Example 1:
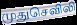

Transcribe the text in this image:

முதுசெவிலி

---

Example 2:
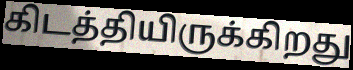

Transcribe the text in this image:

கிடத்தியிருக்கிறது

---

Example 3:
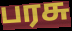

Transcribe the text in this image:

பரசு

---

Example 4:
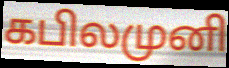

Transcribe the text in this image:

கபிலமுனி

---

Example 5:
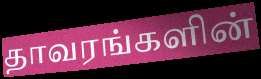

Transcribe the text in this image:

தாவரங்களின்